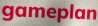
gameplan